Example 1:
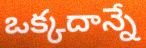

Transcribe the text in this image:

ఒక్కదాన్నే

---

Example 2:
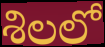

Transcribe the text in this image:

శిలలో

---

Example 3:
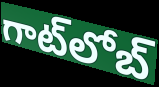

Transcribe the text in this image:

గాట్‍లోబ్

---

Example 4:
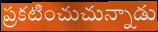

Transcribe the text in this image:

ప్రకటించుచున్నాడు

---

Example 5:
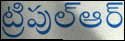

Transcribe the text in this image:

ట్రిపుల్ఆర్